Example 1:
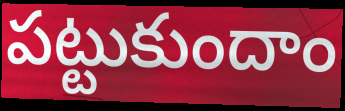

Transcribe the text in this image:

పట్టుకుందాం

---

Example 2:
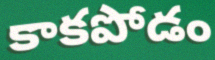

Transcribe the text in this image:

కాకపోడం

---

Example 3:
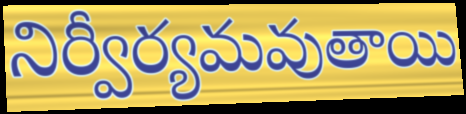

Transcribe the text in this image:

నిర్వీర్యమవుతాయి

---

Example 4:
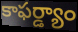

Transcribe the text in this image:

కాఫర్డ్యాం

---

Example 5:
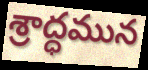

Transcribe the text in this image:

శ్రాద్ధమున